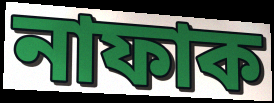
নাফাক